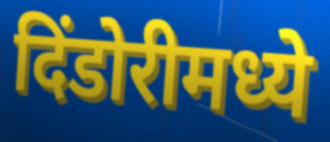
दिंडोरीमध्ये